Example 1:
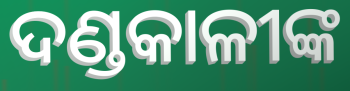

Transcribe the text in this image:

ଦଣ୍ଡକାଳୀଙ୍କ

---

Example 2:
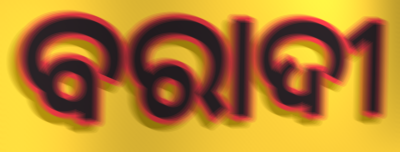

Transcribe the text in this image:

ବରାଦୀ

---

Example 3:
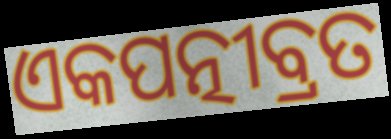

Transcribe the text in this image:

ଏକପତ୍ନୀବ୍ରତ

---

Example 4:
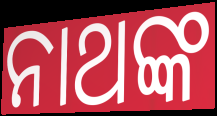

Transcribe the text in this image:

ନାଥଙ୍କ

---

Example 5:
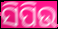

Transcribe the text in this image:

ସିପିଉ